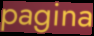
pagina